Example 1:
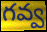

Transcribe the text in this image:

గవ్వ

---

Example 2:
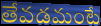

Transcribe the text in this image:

తేవడమంటే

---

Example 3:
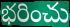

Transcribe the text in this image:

భరించు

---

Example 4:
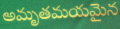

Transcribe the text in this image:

అమృతమయమైన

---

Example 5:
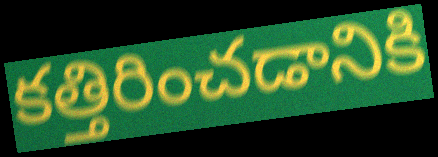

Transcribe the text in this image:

కత్తిరించడానికి